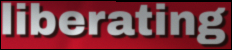
liberating